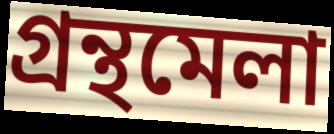
গ্ৰন্থমেলা